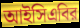
আইসিএবির